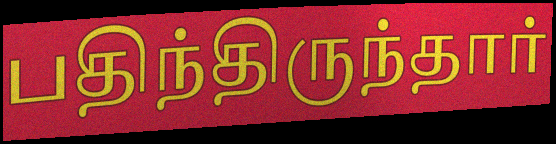
பதிந்திருந்தார்